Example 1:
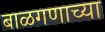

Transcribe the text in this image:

बाळगणाच्या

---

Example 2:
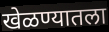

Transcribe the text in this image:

खेळण्यातला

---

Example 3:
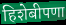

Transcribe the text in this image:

हिशेबीपणा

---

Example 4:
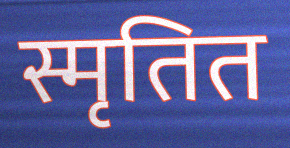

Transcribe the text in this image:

स्मृतित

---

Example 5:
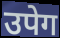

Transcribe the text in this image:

उपेग